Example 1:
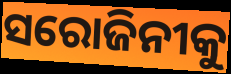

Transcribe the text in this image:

ସରୋଜିନୀକୁ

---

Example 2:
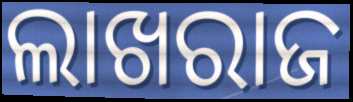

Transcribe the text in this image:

ଲାଖରାଜ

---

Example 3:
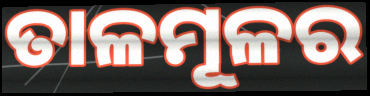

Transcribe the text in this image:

ତାଳମୂଳର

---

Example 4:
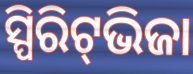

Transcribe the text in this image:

ସ୍ପିରିଟ୍‌ଭିଜା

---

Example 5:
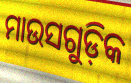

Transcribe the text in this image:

ମାଉସଗୁଡ଼ିକ